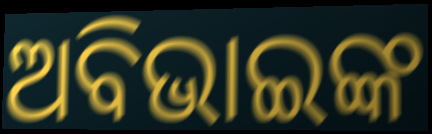
ଅବିଭାଇଙ୍କ